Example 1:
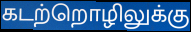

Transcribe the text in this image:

கடற்றொழிலுக்கு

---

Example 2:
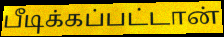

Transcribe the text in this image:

பீடிக்கப்பட்டான்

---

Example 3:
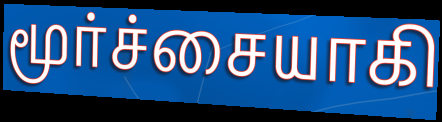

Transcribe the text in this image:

மூர்ச்சையாகி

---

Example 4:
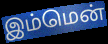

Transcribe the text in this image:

இம்மென்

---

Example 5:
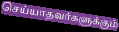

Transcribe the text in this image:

செய்யாதவர்களுக்கும்